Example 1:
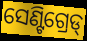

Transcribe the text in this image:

ସେଣ୍ଟିଗ୍ରେଡ୍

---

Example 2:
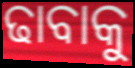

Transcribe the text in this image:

ଢାବାକୁ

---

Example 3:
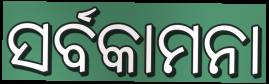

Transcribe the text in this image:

ସର୍ବକାମନା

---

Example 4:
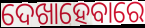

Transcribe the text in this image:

ଦେଖାହେବାରେ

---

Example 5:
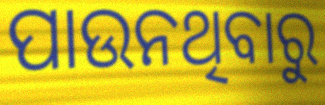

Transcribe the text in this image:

ପାଉନଥିବାରୁ